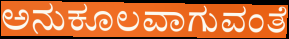
ಅನುಕೂಲವಾಗುವಂತೆ